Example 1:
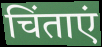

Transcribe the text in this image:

चिंताएं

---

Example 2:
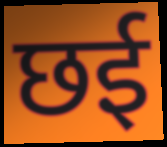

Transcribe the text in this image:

छई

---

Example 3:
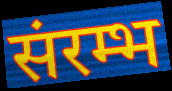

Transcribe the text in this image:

संरम्भ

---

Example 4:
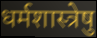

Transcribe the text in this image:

धर्मशास्त्रेषु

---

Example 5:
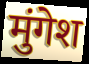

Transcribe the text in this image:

मुंगेश